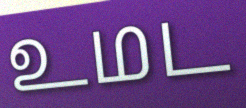
உமட